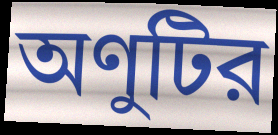
অণুটির